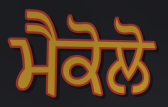
ਮੈਕੋਲੋ